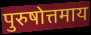
पुरुषोत्तमाय